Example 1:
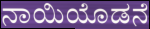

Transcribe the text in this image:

ನಾಯಿಯೊಡನೆ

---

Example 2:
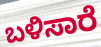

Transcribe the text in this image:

ಬಳಿಸಾರೆ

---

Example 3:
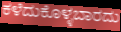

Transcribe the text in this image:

ಕಳೆದುಕೊಳ್ಳಬಾರದು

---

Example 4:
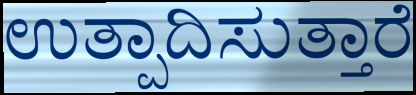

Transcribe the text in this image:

ಉತ್ಪಾದಿಸುತ್ತಾರೆ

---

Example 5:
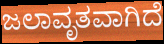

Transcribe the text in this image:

ಜಲಾವೃತವಾಗಿದೆ